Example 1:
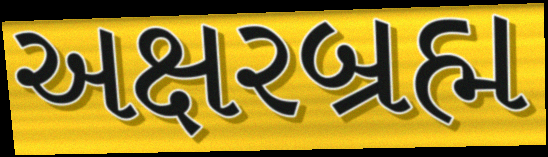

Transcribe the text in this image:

અક્ષરબ્રહ્મ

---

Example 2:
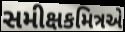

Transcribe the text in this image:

સમીક્ષકમિત્રએ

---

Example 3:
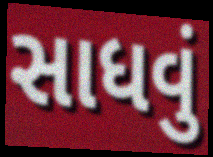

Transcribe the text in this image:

સાધવું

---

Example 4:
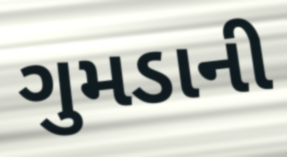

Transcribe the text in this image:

ગુમડાની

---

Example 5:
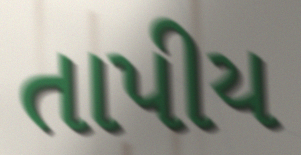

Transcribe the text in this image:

તાપીય